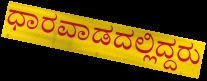
ಧಾರವಾಡದಲ್ಲಿದ್ದರು